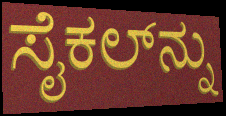
ಸೈಕಲ್‌ನ್ನು